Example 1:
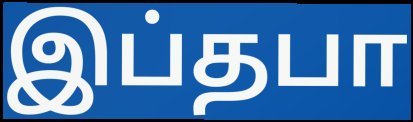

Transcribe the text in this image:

இப்தபா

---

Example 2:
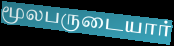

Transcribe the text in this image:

மூலபருடையார்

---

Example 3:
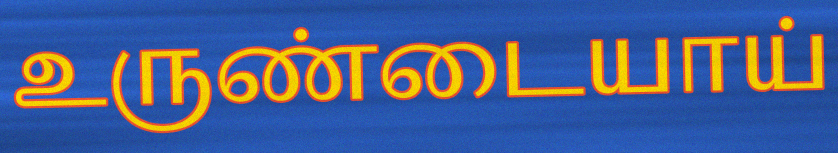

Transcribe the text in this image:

உருண்டையாய்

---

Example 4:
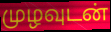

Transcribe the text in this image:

முழவுடன்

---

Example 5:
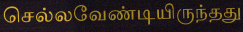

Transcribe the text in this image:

செல்லவேண்டியிருந்தது